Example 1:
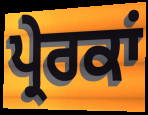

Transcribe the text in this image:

ਪ੍ਰੇਰਕਾਂ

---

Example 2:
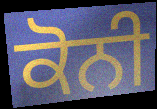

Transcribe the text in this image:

ਕੋਨੀ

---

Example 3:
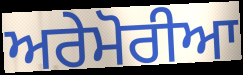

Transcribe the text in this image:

ਅਰੇਮੋਰੀਆ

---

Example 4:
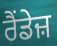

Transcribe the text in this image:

ਰੈਂਡੇਜ਼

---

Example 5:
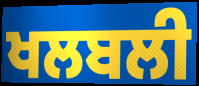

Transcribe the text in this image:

ਖਲਬਲੀ